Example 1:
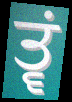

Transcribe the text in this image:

ਤ੍ਵਂ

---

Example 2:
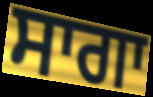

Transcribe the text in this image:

ਸਾਗਾ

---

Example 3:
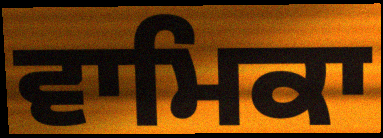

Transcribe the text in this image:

ਵਾਮਿਕਾ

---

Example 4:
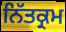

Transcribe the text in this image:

ਨਿੱਤਕ੍ਰਮ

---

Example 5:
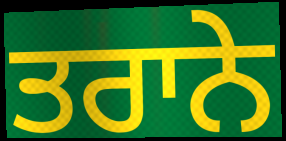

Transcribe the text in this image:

ਤਰਾਨੇ